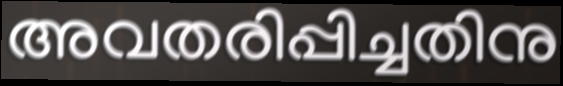
അവതരിപ്പിച്ചതിനു